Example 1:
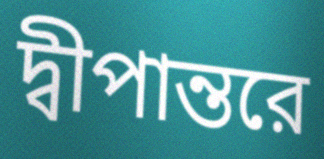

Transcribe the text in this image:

দ্বীপান্তরে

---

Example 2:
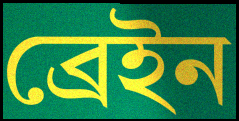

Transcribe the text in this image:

ব্রেইন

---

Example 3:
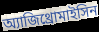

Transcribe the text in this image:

অ্যাজিথ্রোমাইসিন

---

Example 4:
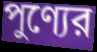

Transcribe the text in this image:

পুণ্যের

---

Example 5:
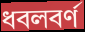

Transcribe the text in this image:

ধবলবর্ণ